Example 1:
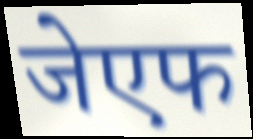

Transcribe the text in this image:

जेएफ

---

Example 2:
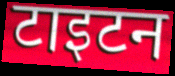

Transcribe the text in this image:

टाइटन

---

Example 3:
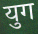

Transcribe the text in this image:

युग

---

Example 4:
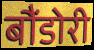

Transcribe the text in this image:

बौंडोरी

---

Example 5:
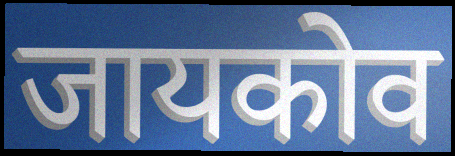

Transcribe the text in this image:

जायकोव